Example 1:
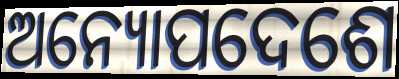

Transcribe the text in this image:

ଅନ୍ୟୋପଦେଶେ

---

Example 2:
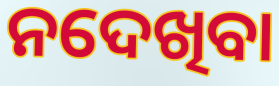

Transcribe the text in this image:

ନଦେଖିବା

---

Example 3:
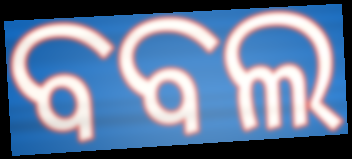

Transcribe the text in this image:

ବବଲ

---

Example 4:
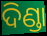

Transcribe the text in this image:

ଦିଣ୍ଡା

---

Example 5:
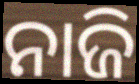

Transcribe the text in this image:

ନାଜି